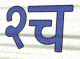
श्च